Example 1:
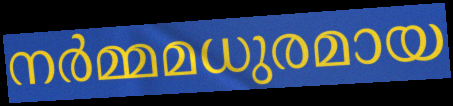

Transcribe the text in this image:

നർമ്മമധുരമായ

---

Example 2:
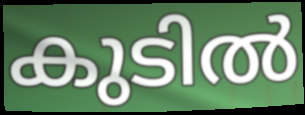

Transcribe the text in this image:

കുടിൽ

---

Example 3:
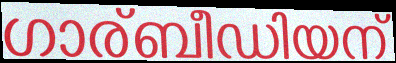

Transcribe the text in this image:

ഗാര്ബീഡിയന്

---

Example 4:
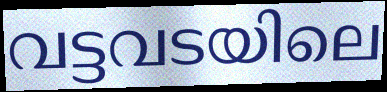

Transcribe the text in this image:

വട്ടവടയിലെ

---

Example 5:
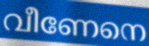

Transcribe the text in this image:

വീണേനെ